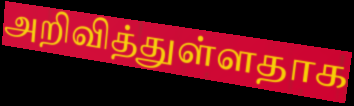
அறிவித்துள்ளதாக